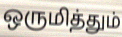
ஒருமித்தும்